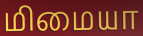
மிமையா